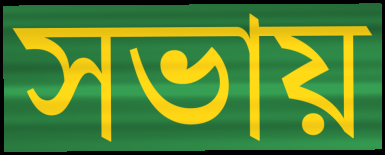
সভায়